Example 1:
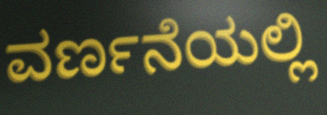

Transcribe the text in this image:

ವರ್ಣನೆಯಲ್ಲಿ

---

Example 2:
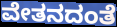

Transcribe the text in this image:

ವೇತನದಂತೆ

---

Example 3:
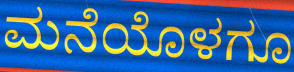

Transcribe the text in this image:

ಮನೆಯೊಳಗೂ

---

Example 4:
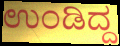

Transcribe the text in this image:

ಉಂಡಿದ್ದ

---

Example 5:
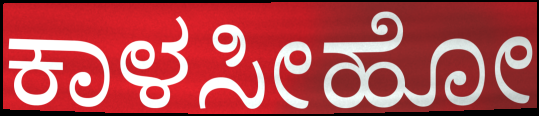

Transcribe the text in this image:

ಕಾಳಸೀಹೋ